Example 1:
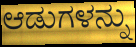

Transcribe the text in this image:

ಆಡುಗಳನ್ನು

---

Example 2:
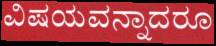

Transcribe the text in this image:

ವಿಷಯವನ್ನಾದರೂ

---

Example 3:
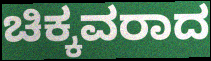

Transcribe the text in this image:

ಚಿಕ್ಕವರಾದ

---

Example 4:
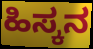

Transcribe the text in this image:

ಹಿಸ್ಕನ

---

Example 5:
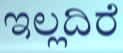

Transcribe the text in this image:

ಇಲ್ಲದಿರೆ